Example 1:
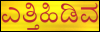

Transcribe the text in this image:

ಎತ್ತಿಹಿಡಿವ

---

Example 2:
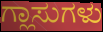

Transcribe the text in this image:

ಗ್ಲಾಸುಗಳು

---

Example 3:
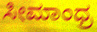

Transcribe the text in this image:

ಸೀಮಾಂಧ್ರ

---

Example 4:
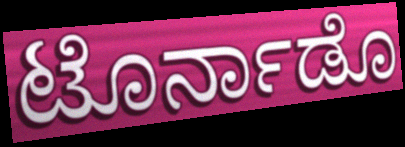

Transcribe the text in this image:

ಟೊರ್ನಾಡೊ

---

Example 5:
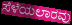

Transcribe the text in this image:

ಸೆಳೆಯಲಾರವು